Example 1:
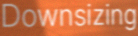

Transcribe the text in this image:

Downsizing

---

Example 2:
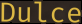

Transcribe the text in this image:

Dulce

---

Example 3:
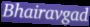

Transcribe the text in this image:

Bhairavgad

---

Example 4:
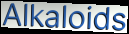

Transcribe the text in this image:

Alkaloids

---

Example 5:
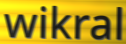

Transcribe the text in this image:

wikral